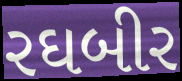
રઘબીર